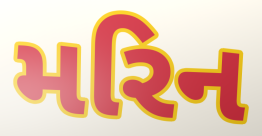
મરિન